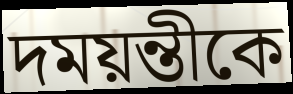
দময়ন্তীকে